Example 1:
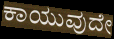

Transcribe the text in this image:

ಕಾಯುವುದೇ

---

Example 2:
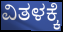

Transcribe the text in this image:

ವಿತಳಕ್ಕೆ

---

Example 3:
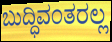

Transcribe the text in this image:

ಬುದ್ಧಿವಂತರಲ್ಲ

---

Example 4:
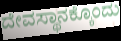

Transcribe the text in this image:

ದೇವಸ್ಥಾನಕ್ಕೊಂದು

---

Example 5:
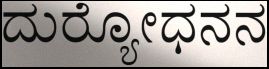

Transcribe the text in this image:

ದುರ‍್ಯೋಧನನ